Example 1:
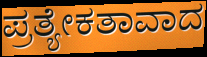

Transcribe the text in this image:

ಪ್ರತ್ಯೇಕತಾವಾದ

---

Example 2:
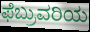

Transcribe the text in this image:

ಫೆಬ್ರುವರಿಯ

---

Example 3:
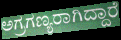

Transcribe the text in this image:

ಅಗ್ರಗಣ್ಯರಾಗಿದ್ದಾರೆ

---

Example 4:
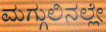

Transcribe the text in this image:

ಮಗ್ಗುಲಿನಲ್ಲೇ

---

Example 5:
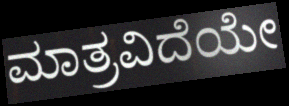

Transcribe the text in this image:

ಮಾತ್ರವಿದೆಯೇ